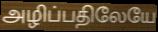
அழிப்பதிலேயே